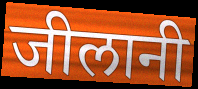
जीलानी